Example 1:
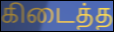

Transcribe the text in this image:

கிடைத்த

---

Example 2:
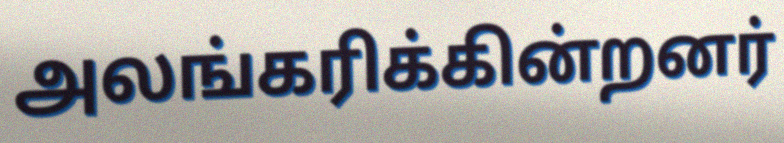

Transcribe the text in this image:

அலங்கரிக்கின்றனர்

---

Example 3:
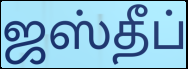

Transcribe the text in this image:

ஜஸ்தீப்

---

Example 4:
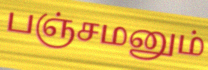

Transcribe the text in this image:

பஞ்சமனும்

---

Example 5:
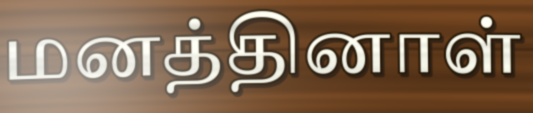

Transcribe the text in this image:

மனத்தினாள்